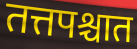
तत्तपश्चात